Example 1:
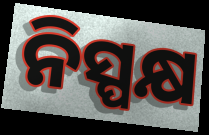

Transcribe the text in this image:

ନିସ୍ପକ୍ଷ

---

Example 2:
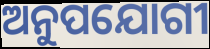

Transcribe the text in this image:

ଅନୁପଯୋଗୀ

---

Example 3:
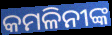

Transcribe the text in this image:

କମଳିନୀଙ୍କ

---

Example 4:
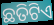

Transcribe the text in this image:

ଛତିଟିଏ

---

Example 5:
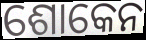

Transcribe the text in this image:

ଶୋକେନ